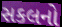
સકલનો